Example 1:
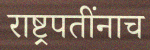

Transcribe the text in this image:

राष्ट्रपतींनाच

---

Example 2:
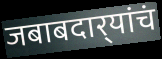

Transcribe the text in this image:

जबाबदार्‍यांचं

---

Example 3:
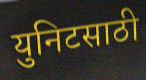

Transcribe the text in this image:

युनिटसाठी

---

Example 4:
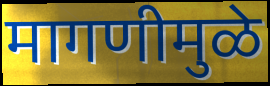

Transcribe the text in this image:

मागणीमुळे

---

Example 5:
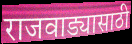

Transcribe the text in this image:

राजवाड्यासाठी